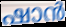
ഷാൻ